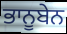
ਭਾਨੂਬੇਨ